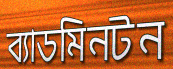
ব্যাডমিনটন